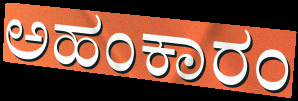
ಅಹಂಕಾರಂ